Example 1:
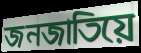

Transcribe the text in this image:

জনজাতিয়ে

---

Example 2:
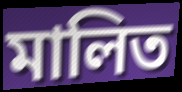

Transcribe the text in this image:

মালিত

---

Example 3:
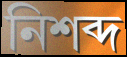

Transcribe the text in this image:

নিশব্দ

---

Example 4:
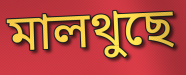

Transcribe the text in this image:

মালথুছে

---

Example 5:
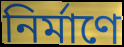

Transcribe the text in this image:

নিৰ্মাণে